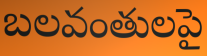
బలవంతులపై